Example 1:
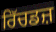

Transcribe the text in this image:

ਰਿੱਚਡਜ਼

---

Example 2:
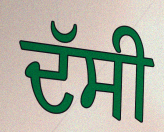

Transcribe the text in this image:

ਦੱਸੀ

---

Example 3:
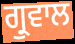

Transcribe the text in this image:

ਗ੍ਰੁਵਾਲ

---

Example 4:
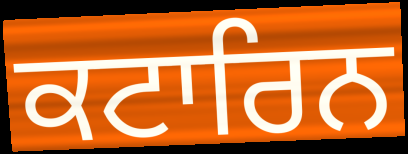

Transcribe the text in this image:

ਕਟਾਰਿਨ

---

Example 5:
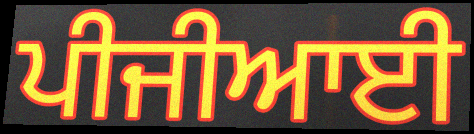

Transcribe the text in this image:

ਪੀਜੀਆਈ